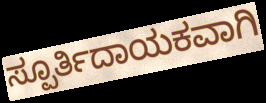
ಸ್ಪೂರ್ತಿದಾಯಕವಾಗಿ